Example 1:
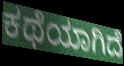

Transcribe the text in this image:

ಕಥೆಯಾಗಿದೆ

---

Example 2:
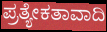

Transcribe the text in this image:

ಪ್ರತ್ಯೇಕತಾವಾದಿ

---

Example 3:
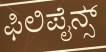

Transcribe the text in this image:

ಫಿಲಿಪೈನ್ಸ್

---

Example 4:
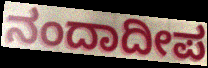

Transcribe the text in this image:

ನಂದಾದೀಪ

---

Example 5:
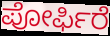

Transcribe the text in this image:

ಪೋರ್ಫಿರೆ